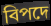
বিপদে